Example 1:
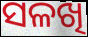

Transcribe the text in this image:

ସଳଖି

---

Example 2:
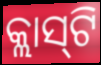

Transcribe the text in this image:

କ୍ଲାସ୍‍ଟି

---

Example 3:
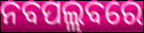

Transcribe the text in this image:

ନବପଲ୍ଲବରେ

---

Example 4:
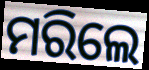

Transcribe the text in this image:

ମରିଲେ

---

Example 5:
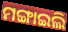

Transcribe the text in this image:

ମଙ୍ଗାଇଲି